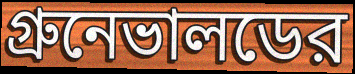
গ্রুনেভালডের